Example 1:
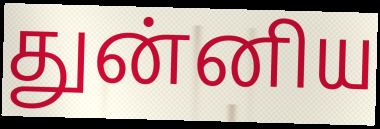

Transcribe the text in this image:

துன்னிய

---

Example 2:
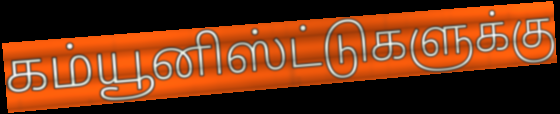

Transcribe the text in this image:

கம்யூனிஸ்ட்டுகளுக்கு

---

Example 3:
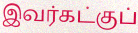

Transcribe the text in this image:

இவர்கட்குப்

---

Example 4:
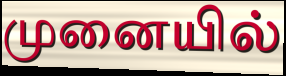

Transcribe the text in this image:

முனையில்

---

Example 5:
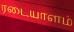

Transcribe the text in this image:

ரடையாளம்